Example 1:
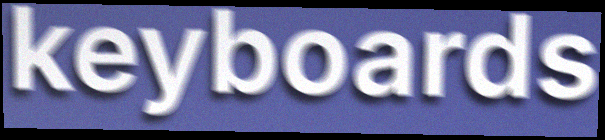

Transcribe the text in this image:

keyboards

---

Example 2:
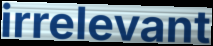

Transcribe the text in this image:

irrelevant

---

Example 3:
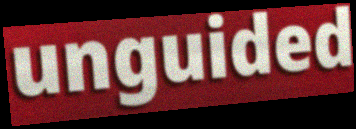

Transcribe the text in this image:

unguided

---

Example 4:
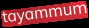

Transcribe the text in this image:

tayammum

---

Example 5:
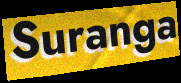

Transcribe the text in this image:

Suranga